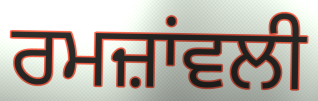
ਰਮਜ਼ਾਂਵਲੀ